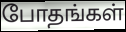
போதங்கள்